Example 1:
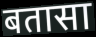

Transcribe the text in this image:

बतासा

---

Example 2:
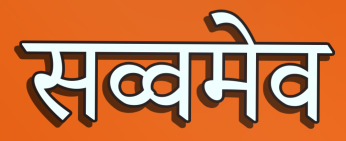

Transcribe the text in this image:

सव्वमेव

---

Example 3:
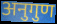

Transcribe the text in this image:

अनुगुण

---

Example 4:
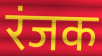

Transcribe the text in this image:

रंजक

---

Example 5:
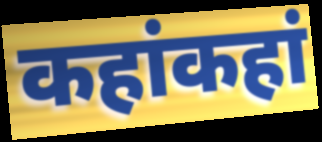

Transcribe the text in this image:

कहांकहां